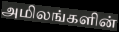
அமிலங்களின்